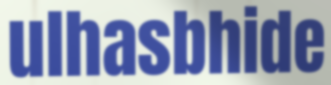
ulhasbhide